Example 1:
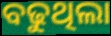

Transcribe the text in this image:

ବଢୁଥିଲା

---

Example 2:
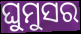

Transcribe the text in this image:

ଘୁମୁସର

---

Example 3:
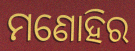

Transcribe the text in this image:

ମଣୋହିର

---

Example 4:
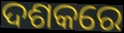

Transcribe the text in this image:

ଦଶକରେ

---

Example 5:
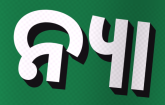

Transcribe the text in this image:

ନ୍ୟା